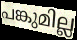
പങ്കുമില്ല